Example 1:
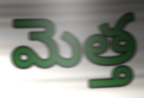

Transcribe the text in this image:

మెత్త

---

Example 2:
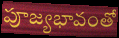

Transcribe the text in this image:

పూజ్యభావంతో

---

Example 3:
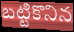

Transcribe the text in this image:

బట్టికొనిన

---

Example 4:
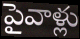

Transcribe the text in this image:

పైవాళ్లు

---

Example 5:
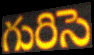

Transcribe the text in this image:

గురిసె